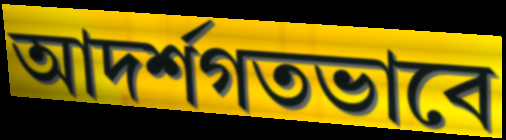
আদর্শগতভাবে